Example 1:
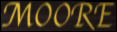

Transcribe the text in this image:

MOORE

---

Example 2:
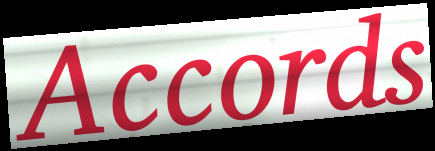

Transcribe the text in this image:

Accords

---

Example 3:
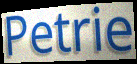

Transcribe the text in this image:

Petrie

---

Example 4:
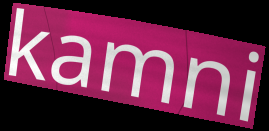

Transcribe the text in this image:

kamni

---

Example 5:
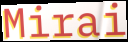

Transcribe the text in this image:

Mirai